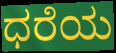
ಧರೆಯ